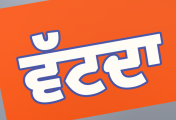
ਵੱਟਦਾ